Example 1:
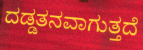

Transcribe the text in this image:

ದಡ್ಡತನವಾಗುತ್ತದೆ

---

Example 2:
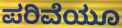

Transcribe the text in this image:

ಪರಿವೆಯೂ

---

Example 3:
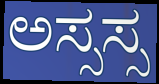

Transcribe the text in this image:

ಅಸ್ಸಸ್ಸ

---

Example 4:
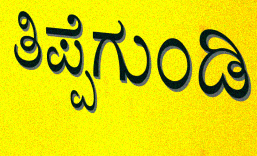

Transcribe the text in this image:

ತಿಪ್ಪೆಗುಂಡಿ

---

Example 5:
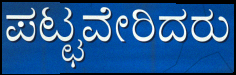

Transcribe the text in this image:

ಪಟ್ಟವೇರಿದರು